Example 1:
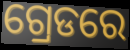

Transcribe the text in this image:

ଗ୍ରେଡରେ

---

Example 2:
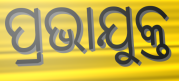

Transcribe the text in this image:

ପ୍ରଭାଯୁକ୍ତ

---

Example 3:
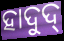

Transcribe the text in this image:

ହାଦୁଦ୍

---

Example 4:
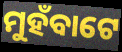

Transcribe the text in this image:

ମୁହଁବାଟେ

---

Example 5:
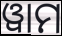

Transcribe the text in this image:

ୱାମ